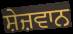
ਸ਼ੇਜ਼ਵਾਨ